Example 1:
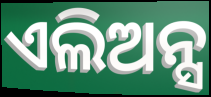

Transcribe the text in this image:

ଏଲିଅନ୍ସ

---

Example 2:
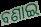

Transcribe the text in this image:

ବଣାଇ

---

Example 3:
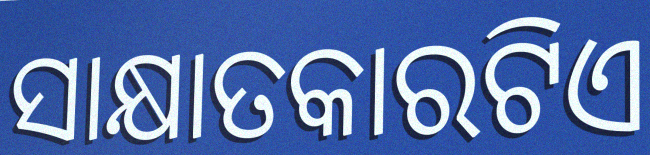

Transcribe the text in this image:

ସାକ୍ଷାତକାରଟିଏ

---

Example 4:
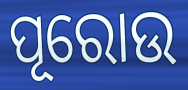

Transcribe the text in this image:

ପୂରୋଉ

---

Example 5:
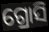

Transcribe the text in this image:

ଗ୍ରୋସି